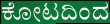
ಕೋಟದಿಂದ